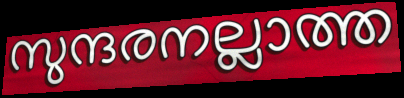
സുന്ദരനല്ലാത്ത